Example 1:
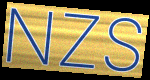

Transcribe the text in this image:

NZS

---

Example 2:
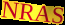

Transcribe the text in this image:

NRAS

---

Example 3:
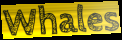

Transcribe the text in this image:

Whales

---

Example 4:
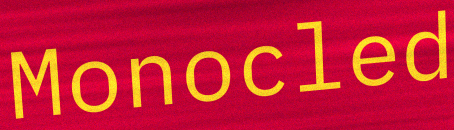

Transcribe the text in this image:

Monocled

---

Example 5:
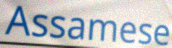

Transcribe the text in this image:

Assamese